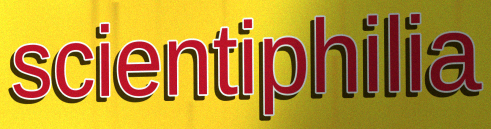
scientiphilia